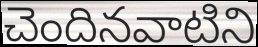
చెందినవాటిని